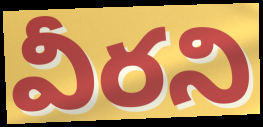
వీరని